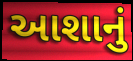
આશાનું